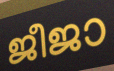
ജീജാ